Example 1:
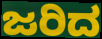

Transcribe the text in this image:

ಜರಿದ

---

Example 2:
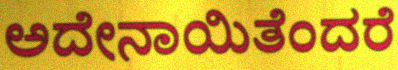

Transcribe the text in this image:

ಅದೇನಾಯಿತೆಂದರೆ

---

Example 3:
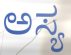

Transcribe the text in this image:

ಅಸ್ಯ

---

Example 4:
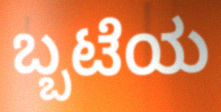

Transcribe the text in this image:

ಬ್ಬಟೆಯ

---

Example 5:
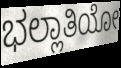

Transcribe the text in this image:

ಭಲ್ಲಾತಿಯೋ